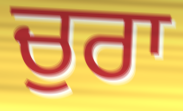
ਚੁਰਾ